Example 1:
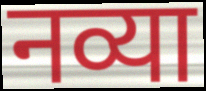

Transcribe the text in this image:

नव्या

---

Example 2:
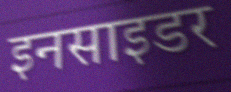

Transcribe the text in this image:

इनसाइडर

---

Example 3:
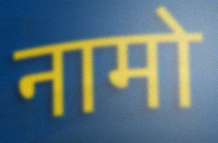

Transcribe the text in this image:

नामो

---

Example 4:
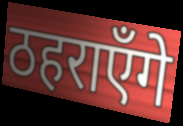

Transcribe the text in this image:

ठहराएँगे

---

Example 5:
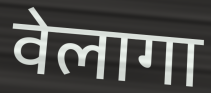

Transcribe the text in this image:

वेलागा